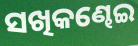
ସଖିକଣ୍ଢେଇ